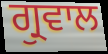
ਗ੍ਰੁਵਾਲ